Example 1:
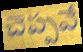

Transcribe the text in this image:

చెప్పవే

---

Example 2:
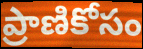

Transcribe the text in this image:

ప్రాణికోసం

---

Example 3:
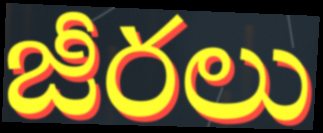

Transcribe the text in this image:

జీరలు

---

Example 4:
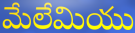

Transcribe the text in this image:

మేలేమియు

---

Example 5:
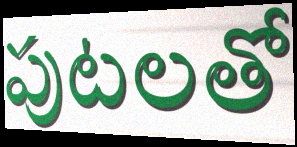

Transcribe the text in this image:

పుటలతో